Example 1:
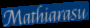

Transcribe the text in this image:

Mathiarasu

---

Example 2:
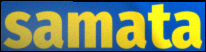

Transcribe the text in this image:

samata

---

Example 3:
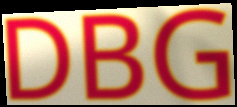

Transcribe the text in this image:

DBG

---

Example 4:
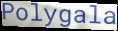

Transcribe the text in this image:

Polygala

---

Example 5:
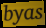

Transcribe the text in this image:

byas